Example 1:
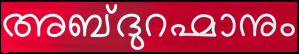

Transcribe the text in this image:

അബ്ദുറഹ്മാനും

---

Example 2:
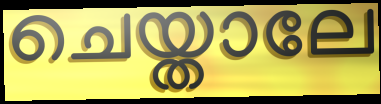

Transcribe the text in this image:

ചെയ്താലേ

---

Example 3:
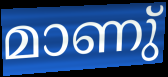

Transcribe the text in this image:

മാണു്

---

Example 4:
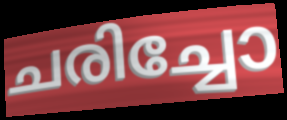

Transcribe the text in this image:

ചരിച്ചോ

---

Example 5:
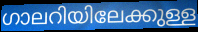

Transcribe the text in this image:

ഗാലറിയിലേക്കുള്ള